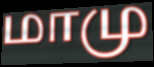
மாமு